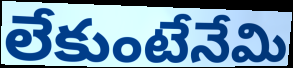
లేకుంటేనేమి